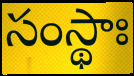
సంస్థాః